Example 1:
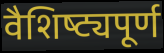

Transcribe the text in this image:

वैशिष्ट्यपूर्ण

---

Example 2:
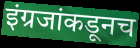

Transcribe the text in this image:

इंग्रजांकडूनच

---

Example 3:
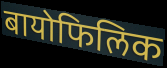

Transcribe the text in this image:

बायोफिलिक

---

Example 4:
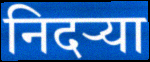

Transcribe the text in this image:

निदऱ्या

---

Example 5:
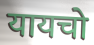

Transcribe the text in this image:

यायचो